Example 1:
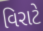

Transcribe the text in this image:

વિરાટે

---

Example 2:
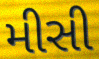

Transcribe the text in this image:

મીસી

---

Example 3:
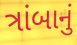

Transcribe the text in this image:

ત્રાંબાનું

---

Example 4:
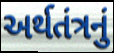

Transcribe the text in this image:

અર્થતંત્રનું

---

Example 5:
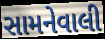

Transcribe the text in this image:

સામનેવાલી